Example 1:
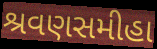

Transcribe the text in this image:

શ્રવણસમીહા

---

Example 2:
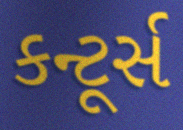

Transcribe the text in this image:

કન્ટૂર્સ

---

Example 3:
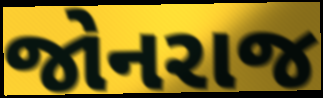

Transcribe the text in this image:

જોનરાજ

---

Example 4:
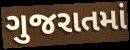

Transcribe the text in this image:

ગુજરાતમાં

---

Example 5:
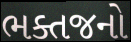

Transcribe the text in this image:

ભક્તજનો